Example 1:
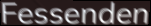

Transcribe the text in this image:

Fessenden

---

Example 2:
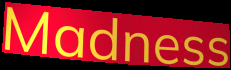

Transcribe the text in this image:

Madness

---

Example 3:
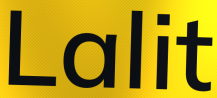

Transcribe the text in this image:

Lalit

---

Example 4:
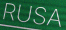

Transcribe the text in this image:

RUSA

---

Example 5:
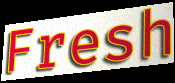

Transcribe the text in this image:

Fresh